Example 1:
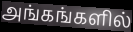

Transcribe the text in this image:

அங்கங்களில்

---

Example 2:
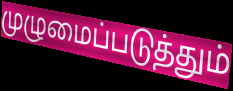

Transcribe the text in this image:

முழுமைப்படுத்தும்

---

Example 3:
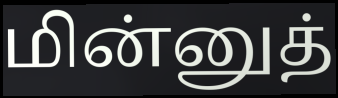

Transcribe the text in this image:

மின்னுத்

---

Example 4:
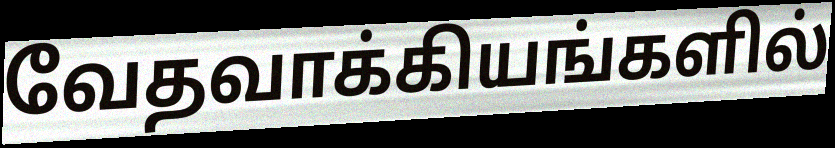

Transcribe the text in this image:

வேதவாக்கியங்களில்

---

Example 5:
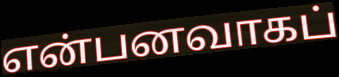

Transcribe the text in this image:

என்பனவாகப்